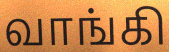
வாங்கி